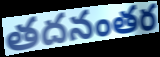
తదనంతర